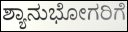
ಶ್ಯಾನುಭೋಗರಿಗೆ